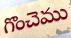
గొంచెము